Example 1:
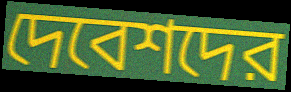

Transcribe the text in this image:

দেবেশদের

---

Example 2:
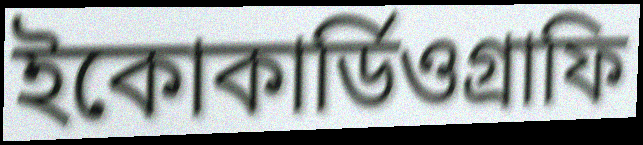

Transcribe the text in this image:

ইকোকার্ডিওগ্রাফি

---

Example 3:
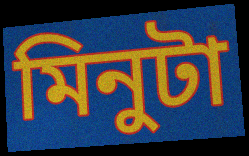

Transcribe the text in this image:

মিনুটা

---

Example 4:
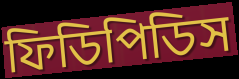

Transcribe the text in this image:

ফিডিপিডিস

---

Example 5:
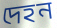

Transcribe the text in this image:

দেহন